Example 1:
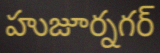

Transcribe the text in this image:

హుజూర్నగర్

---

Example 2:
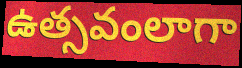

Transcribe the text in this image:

ఉత్సవంలాగా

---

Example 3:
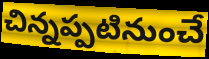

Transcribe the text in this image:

చిన్నప్పటినుంచే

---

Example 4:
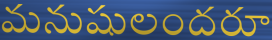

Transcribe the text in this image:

మనుషులందరూ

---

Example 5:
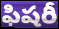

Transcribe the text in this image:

ఫిషరీ